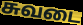
சுவடை